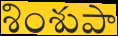
శింశుపా